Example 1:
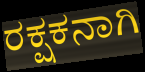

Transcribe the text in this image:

ರಕ್ಷಕನಾಗಿ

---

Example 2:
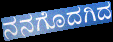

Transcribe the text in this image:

ನನಗೊದಗಿದ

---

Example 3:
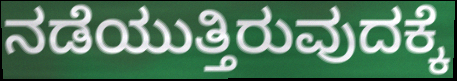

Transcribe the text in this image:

ನಡೆಯುತ್ತಿರುವುದಕ್ಕೆ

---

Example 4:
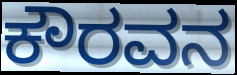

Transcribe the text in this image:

ಕೌರವನ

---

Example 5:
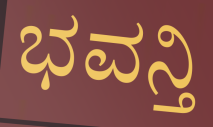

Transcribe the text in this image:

ಭವನ್ತಿ